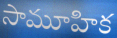
సామూహిక